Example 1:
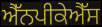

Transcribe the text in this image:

ਐੱਨਪੀਕੇਐੱਸ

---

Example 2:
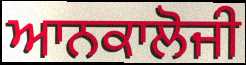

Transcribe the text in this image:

ਆਨਕਾਲੋਜੀ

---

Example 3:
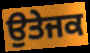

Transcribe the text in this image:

ਉਤੇਜਕ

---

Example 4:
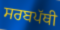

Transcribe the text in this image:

ਸਰਬਪੱਥੀ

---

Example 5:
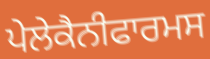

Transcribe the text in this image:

ਪੇਲੇਕੈਨੀਫਾਰਮਸ